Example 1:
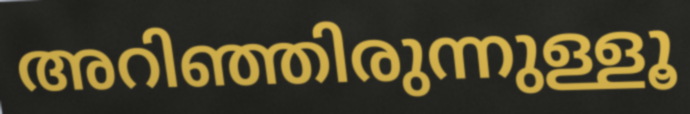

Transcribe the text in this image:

അറിഞ്ഞിരുന്നുള്ളൂ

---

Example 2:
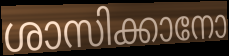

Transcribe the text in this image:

ശാസിക്കാനോ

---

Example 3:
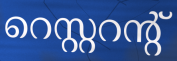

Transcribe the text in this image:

റെസ്റ്ററന്റ്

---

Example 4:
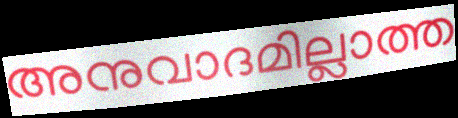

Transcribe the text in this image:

അനുവാദമില്ലാത്ത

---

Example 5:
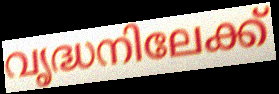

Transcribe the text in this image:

വൃദ്ധനിലേക്ക്